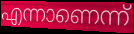
എന്നാണെന്ന്